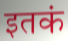
इतकं